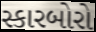
સ્કારબોરો